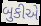
બુકીએ